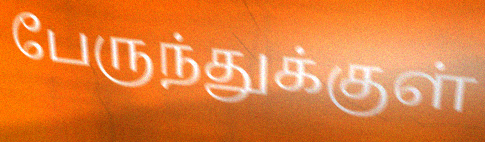
பேருந்துக்குள்